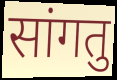
सांगतु